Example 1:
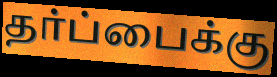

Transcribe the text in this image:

தர்ப்பைக்கு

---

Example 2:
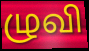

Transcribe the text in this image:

ழுவி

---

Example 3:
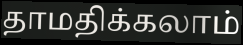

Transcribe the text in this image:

தாமதிக்கலாம்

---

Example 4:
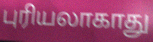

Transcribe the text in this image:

புரியலாகாது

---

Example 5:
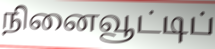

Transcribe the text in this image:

நினைவூட்டிப்